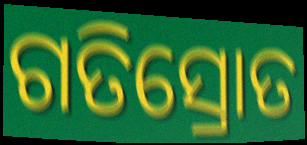
ଗତିସ୍ରୋତ